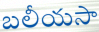
బలీయసా